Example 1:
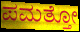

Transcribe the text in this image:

ಪಮತ್ತೋ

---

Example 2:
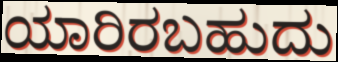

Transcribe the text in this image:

ಯಾರಿರಬಹುದು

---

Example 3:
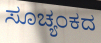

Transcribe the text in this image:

ಸೂಚ್ಯಂಕದ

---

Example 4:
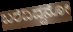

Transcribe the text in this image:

ಬರೆದಿದ್ದನೋ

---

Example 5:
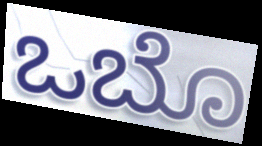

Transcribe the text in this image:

ಒಬೊ